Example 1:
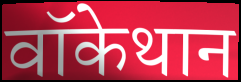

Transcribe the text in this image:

वॉकेथान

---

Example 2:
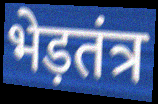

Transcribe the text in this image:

भेड़तंत्र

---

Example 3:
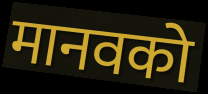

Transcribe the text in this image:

मानवको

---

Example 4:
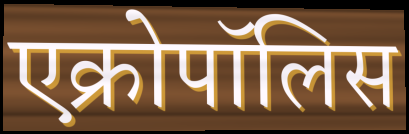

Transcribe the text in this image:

एक्रोपॉलिस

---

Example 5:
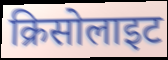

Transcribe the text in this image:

क्रिसोलाइट